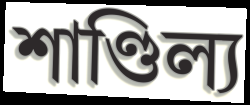
শাণ্ডিল্য